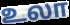
உலா